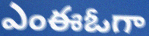
ఎంఈఓగా